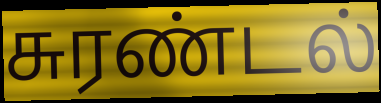
சுரண்டல்